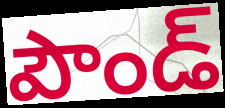
పౌండ్